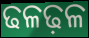
ଢଳଢ଼ଳ